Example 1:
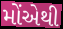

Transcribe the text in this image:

મોંએથી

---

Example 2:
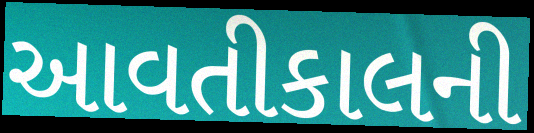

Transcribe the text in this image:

આવતીકાલની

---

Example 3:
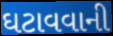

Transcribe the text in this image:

ઘટાવવાની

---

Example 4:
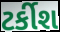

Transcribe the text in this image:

ટર્કીશ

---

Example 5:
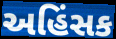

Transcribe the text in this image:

અહિંસક